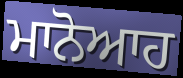
ਮਾਨੋਆਹ